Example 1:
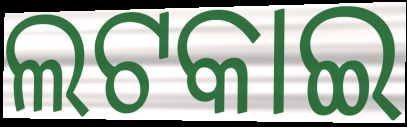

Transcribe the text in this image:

ଲଟକାଇ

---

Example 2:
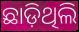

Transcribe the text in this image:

ଛାଡ଼ିଥିଲି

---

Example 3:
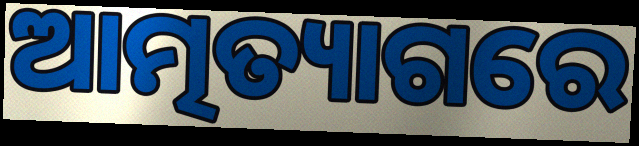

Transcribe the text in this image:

ଆତ୍ମତ୍ୟାଗରେ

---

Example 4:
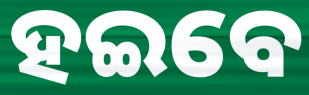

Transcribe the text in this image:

ହଇବେ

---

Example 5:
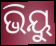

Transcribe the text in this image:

ଭିୟୁ